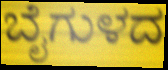
ಬೈಗುಳದ